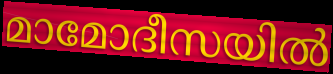
മാമോദീസയിൽ